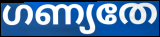
ഗണ്യതേ